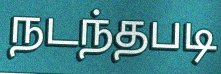
நடந்தபடி